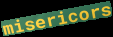
misericors